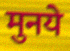
मुनये